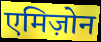
एमिज़ोन